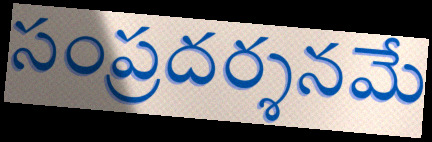
సంప్రదర్శనమే